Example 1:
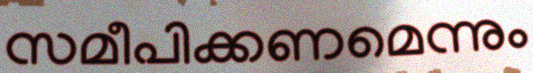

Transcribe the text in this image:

സമീപിക്കണമെന്നും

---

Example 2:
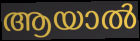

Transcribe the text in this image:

ആയാൽ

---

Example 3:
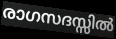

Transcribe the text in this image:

രാഗസദസ്സിൽ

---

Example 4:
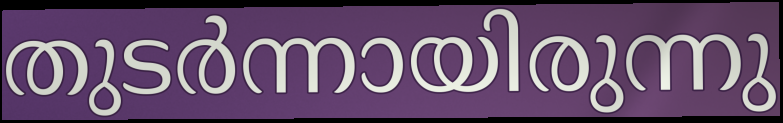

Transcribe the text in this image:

തുടർന്നായിരുന്നു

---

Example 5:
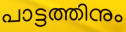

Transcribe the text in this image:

പാട്ടത്തിനും